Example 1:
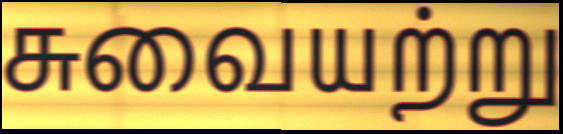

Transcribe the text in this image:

சுவையற்று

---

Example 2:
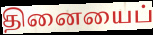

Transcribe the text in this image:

தினையைப்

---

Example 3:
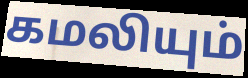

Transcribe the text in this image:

கமலியும்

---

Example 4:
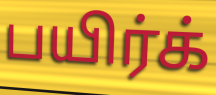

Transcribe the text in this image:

பயிர்க்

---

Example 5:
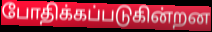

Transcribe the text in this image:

போதிக்கப்படுகின்றன